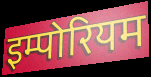
इम्पोरियम